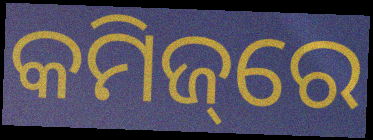
କମିଜ୍‌ରେ